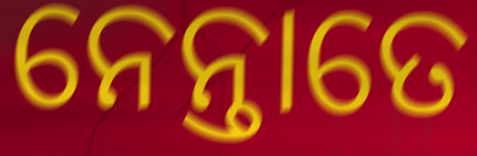
ନେନ୍ତାତେ